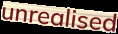
unrealised